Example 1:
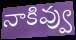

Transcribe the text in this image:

నాకివ్వు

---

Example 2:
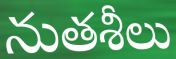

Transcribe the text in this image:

నుతశీలు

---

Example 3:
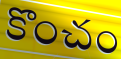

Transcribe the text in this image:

కొంచం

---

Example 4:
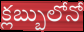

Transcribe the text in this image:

క్లబ్బులోనో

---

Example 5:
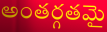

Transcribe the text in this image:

అంతర్గతమై